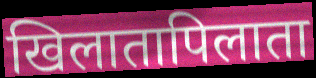
खिलातापिलाता